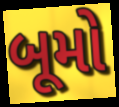
બૂમો